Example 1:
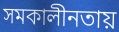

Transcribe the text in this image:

সমকালীনতায়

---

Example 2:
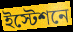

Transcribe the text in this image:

ইস্টেশনে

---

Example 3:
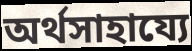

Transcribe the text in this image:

অর্থসাহায্যে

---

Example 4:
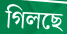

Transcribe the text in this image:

গিলছে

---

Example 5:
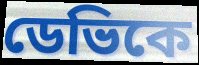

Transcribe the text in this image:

ডেভিকে